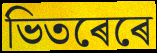
ভিতৰেৰে